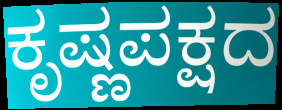
ಕೃಷ್ಣಪಕ್ಷದ